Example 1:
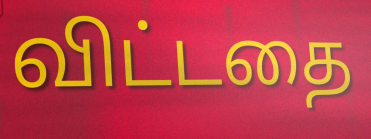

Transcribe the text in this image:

விட்டதை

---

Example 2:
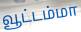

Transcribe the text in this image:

வூட்டம்மா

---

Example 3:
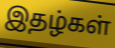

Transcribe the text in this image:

இதழ்கள்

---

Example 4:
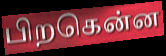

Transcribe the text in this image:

பிறகென்ன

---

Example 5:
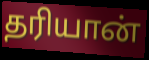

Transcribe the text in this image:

தரியான்